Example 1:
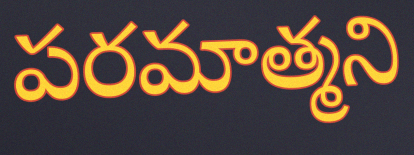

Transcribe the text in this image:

పరమాత్మని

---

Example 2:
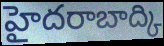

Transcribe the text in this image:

హైదరాబాద్కి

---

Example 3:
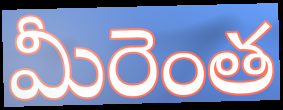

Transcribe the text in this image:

మీరెంత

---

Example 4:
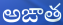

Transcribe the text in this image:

అఙాత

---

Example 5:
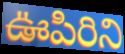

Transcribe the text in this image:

ఊపిరిని